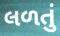
લળતું